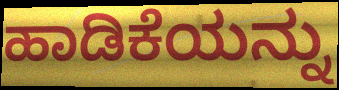
ಹಾಡಿಕೆಯನ್ನು